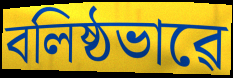
বলিষ্ঠভাৱে